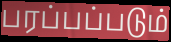
பரப்பப்படும்